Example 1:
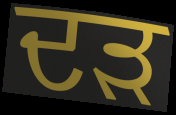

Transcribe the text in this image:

ਦੜ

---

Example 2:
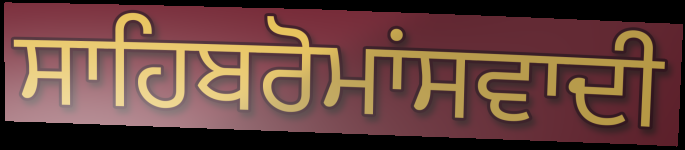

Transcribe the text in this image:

ਸਾਹਿਬਰੋਮਾਂਸਵਾਦੀ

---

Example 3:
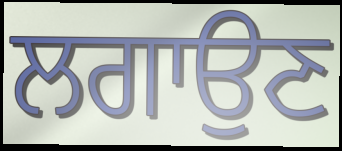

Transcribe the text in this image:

ਲਗਾਉਣ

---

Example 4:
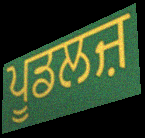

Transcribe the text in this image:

ਪੂਡਲਜ਼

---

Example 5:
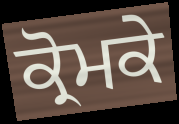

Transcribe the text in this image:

ਕ੍ਰੋਮਕੇ